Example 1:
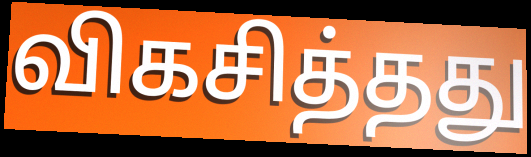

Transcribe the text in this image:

விகசித்தது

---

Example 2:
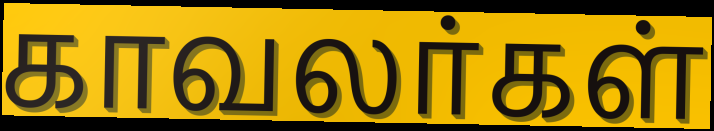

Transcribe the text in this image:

காவலர்கள்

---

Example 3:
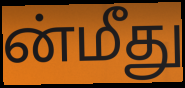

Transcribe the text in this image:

ன்மீது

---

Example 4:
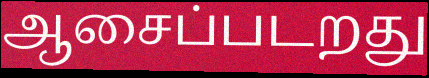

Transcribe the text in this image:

ஆசைப்படறது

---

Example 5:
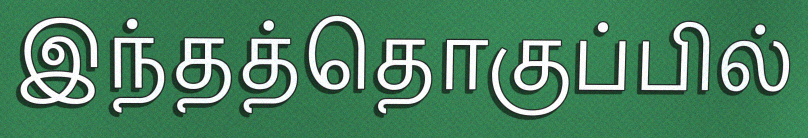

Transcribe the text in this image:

இந்தத்தொகுப்பில்